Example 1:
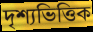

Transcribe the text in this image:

দৃশ্যভিত্তিক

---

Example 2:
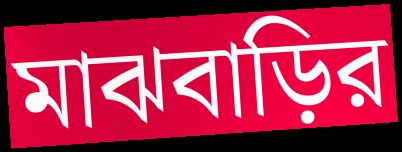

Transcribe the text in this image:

মাঝবাড়ির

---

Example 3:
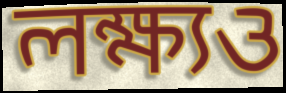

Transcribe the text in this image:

লক্ষ্যও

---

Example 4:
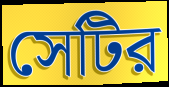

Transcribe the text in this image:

সেটির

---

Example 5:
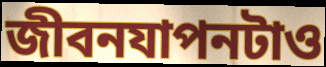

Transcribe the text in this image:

জীবনযাপনটাও